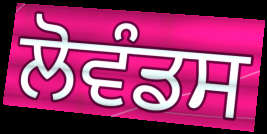
ਲੋਵੰਡਸ